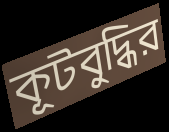
কূটবুদ্ধির